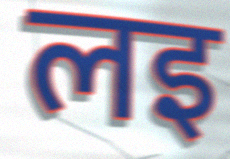
लइ